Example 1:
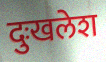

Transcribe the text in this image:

दुःखलेश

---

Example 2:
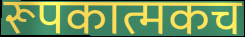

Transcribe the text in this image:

रूपकात्मकच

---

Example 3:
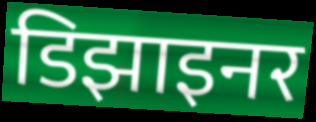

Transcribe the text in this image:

डिझाइनर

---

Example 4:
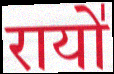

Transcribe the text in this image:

रायो॑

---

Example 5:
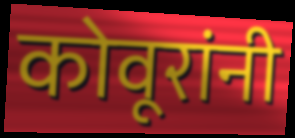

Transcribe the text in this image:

कोवूरांनी